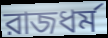
রাজধর্ম